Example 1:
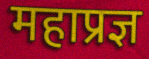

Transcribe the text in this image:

महाप्रज्ञ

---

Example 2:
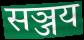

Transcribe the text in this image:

सञ्जय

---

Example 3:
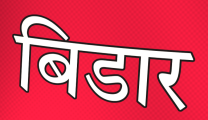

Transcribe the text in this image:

बिडार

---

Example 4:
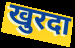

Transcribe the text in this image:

खुरदा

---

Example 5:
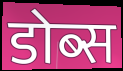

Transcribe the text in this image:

डोब्स